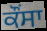
ਕੌਂਸਾ